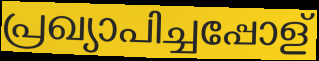
പ്രഖ്യാപിച്ചപ്പോള്